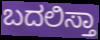
ಬದಲಿಸ್ತಾ